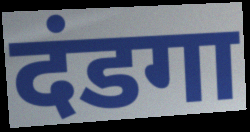
दंडगा